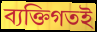
ব্যক্তিগতই